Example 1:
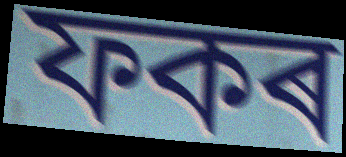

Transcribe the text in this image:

ফকৰ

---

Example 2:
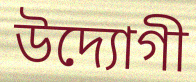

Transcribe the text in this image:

উদ্যোগী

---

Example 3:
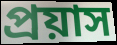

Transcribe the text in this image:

প্ৰয়াস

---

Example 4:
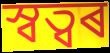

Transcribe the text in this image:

স্বত্বৰ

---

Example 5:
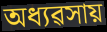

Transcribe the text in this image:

অধ্যৱসায়